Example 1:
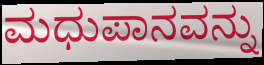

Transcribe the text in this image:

ಮಧುಪಾನವನ್ನು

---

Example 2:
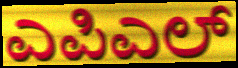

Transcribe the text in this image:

ಎಪಿಎಲ್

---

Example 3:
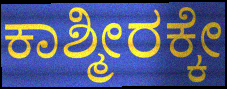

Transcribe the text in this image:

ಕಾಶ್ಮೀರಕ್ಕೇ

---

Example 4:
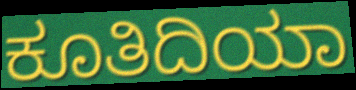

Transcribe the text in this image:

ಕೂತಿದಿಯಾ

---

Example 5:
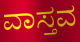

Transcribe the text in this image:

ವಾಸ್ತವ